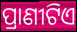
ପ୍ରାଣୀଟିଏ